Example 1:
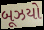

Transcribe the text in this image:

બૂઝયો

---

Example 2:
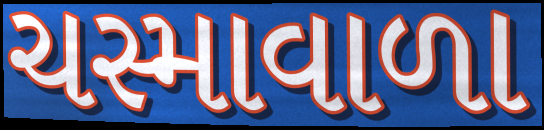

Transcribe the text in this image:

ચસ્માવાળા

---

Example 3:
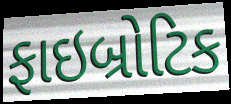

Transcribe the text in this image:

ફાઇબ્રોટિક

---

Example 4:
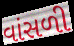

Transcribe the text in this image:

વાંસળી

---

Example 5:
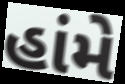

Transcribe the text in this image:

હાંમે